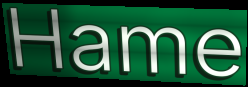
Hame